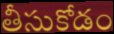
తీసుకోడం